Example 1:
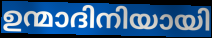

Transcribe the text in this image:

ഉന്മാദിനിയായി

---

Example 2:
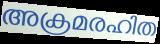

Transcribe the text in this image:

അക്രമരഹിത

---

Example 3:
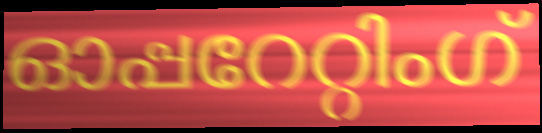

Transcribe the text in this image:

ഓപ്പറേറ്റിംഗ്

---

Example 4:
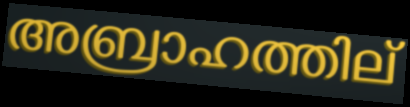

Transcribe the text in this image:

അബ്രാഹത്തില്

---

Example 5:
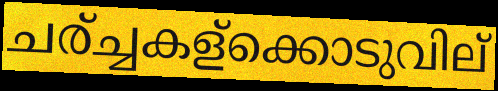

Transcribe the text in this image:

ചര്ച്ചകള്ക്കൊടുവില്